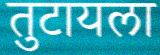
तुटायला